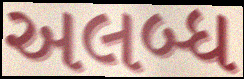
અલબ્ધ